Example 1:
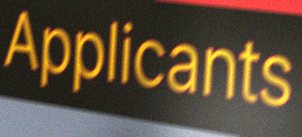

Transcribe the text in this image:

Applicants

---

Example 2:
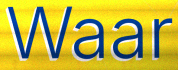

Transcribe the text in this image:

Waar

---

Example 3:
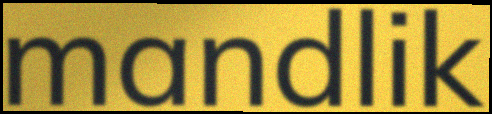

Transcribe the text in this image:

mandlik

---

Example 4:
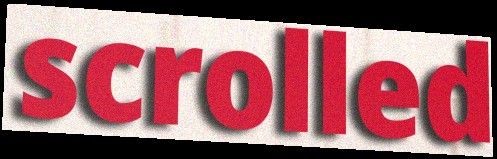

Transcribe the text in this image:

scrolled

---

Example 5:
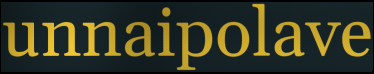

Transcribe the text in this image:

unnaipolave